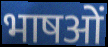
भाषओं